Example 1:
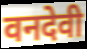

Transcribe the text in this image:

वनदेवी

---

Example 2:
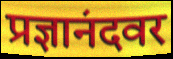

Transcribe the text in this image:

प्रज्ञानंदवर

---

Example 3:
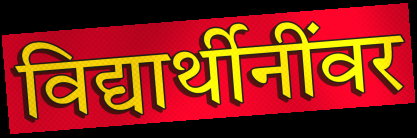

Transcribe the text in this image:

विद्यार्थीनींवर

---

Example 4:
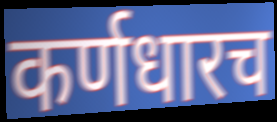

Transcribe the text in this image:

कर्णधारच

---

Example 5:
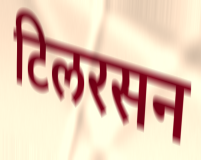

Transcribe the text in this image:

टिलरसन